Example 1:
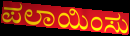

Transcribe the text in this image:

ಪಲಾಯಿಂಸು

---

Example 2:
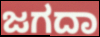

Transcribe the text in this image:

ಜಗದಾ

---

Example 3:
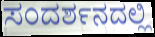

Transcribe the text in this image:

ಸಂದರ್ಶನದಲ್ಲಿ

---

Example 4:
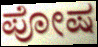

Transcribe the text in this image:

ಪೋಷ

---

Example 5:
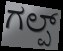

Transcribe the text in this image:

ಗಲ್ಪ್